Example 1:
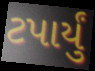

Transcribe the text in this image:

ટપાર્યું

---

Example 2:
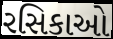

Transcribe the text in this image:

રસિકાઓ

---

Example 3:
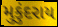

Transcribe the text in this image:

મુકુંદરાય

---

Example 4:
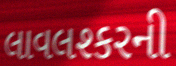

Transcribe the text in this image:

લાવલશ્કરની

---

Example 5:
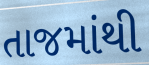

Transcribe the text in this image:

તાજમાંથી